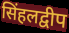
सिंहलद्वीप